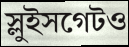
স্লুইসগেটও